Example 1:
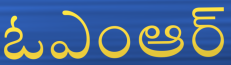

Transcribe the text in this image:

ఓఎంఆర్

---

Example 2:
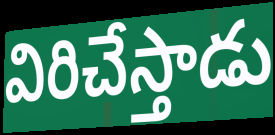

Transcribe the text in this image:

విరిచేస్తాడు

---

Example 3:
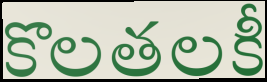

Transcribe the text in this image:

కొలతలకీ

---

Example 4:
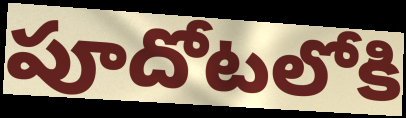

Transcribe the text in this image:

పూదోటలోకి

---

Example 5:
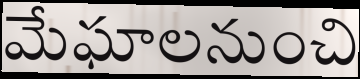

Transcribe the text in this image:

మేఘాలనుంచి